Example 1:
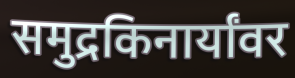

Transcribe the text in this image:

समुद्रकिनार्यांवर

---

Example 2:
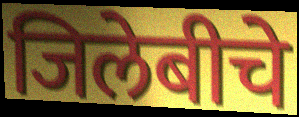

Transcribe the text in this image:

जिलेबीचे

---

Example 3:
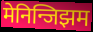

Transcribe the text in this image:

मेनिन्जिझम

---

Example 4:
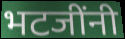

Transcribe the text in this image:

भटजींनी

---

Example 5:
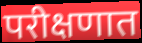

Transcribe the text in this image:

परीक्षणात